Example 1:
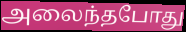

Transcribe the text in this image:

அலைந்தபோது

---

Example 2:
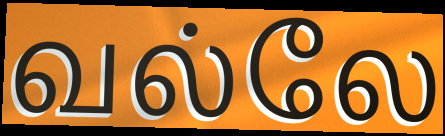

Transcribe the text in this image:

வல்லே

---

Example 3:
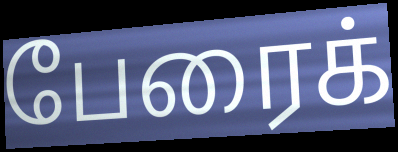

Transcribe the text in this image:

பேரைக்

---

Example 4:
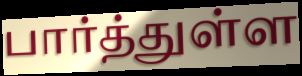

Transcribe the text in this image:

பார்த்துள்ள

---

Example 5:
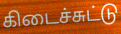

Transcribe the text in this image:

கிடைச்சுட்டு